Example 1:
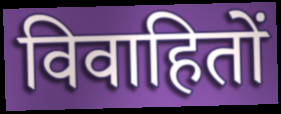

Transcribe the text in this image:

विवाहितों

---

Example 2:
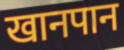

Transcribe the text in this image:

खानपान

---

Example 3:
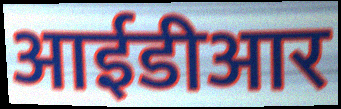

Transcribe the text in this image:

आईडीआर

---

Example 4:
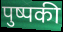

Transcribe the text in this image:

पुष्पकी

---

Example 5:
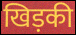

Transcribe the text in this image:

खिड़की